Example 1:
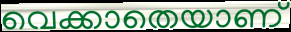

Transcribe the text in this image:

വെക്കാതെയാണ്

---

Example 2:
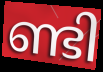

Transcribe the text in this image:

ണ്ടി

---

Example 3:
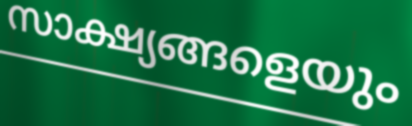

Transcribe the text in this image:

സാക്ഷ്യങ്ങളെയും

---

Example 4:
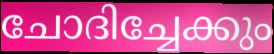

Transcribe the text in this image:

ചോദിച്ചേക്കും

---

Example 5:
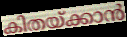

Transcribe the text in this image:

കിതയ്ക്കാൻ